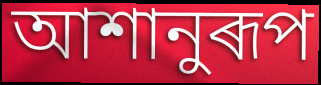
আশানুৰূপ